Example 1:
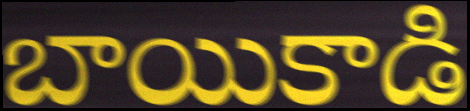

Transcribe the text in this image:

బాయికాడి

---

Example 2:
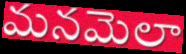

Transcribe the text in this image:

మనమెలా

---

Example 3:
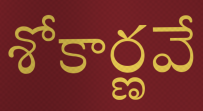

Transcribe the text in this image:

శోకార్ణవే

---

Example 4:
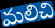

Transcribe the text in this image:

మలిచి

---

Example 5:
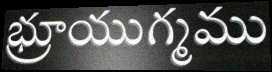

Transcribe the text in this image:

భ్రూయుగ్మము